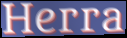
Herra